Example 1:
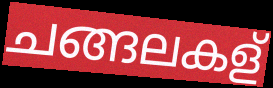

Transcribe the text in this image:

ചങ്ങലകള്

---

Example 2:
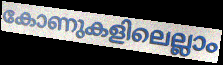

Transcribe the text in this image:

കോണുകളിലെല്ലാം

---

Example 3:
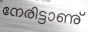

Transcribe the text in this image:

നേരിട്ടാണു്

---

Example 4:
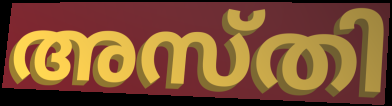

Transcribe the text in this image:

അസ്തി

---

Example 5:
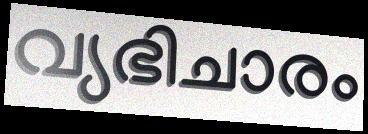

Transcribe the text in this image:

വ്യഭിചാരം